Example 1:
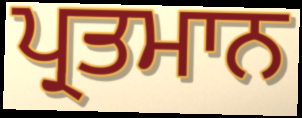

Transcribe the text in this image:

ਪ੍ਰਤਮਾਨ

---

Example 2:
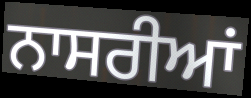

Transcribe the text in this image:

ਨਾਸਰੀਆਂ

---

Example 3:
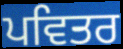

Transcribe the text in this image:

ਪਵਿਤਰ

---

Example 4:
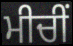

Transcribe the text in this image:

ਮੀਚੀਂ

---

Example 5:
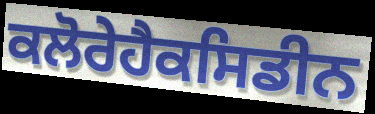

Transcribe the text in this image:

ਕਲੋਰੇਹੈਕਸਿਡੀਨ